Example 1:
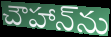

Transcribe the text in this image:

చౌహాన్‌ను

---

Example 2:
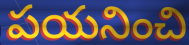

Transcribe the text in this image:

పయనించి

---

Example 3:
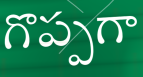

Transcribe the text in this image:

గొప్పగా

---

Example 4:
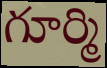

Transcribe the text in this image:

గూర్మి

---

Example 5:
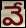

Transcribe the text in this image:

వే